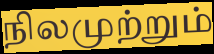
நிலமுற்றும்